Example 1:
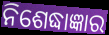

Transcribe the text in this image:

ନିଶେଦ୍ଧାଜ୍ଞାର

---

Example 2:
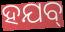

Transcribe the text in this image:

ହଯବ୍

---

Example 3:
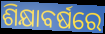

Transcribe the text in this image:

ଶିକ୍ଷାବର୍ଷରେ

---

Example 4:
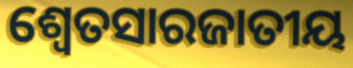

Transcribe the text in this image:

ଶ୍ଵେତସାରଜାତୀୟ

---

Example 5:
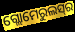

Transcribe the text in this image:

ଗ୍ଲୋମେରୁଲସ୍‌ର